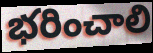
భరించాలి